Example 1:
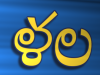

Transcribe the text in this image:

ళల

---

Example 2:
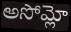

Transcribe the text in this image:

అసోమ్లో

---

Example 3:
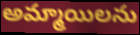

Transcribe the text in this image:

అమ్మాయిలను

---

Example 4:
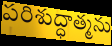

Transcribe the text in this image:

పరిశుద్ధాత్మను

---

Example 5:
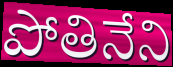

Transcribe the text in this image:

పోతినేని